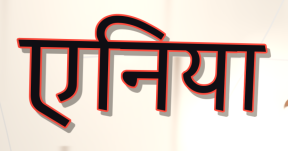
एनिया